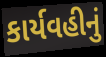
કાર્યવહીનું